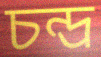
চন্দ্ৰ